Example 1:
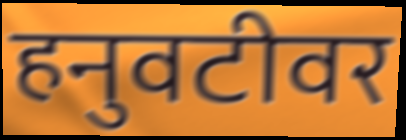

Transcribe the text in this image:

हनुवटीवर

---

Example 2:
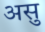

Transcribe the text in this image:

असु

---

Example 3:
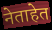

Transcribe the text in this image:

नेताहेत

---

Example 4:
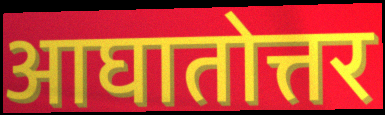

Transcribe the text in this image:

आघातोत्तर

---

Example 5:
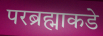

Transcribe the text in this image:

परब्रह्माकडे